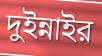
দুইন্নাইর